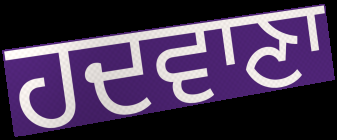
ਹਦਵਾਣਾ